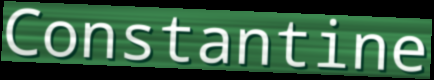
Constantine